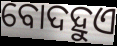
ବୋଦହୁଏ